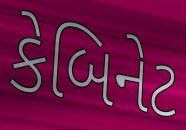
કેબિનેટ